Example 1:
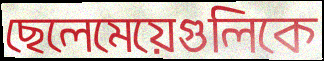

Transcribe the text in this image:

ছেলেমেয়েগুলিকে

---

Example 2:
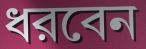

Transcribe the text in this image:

ধরবেন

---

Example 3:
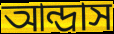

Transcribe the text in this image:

আন্দ্রাস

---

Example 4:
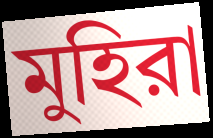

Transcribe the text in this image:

মুহিরা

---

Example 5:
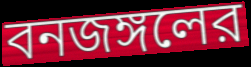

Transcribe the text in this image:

বনজঙ্গলের